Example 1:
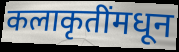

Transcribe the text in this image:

कलाकृतींमधून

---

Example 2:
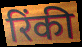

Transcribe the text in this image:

रिंकी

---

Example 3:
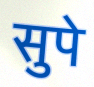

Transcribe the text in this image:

सुपे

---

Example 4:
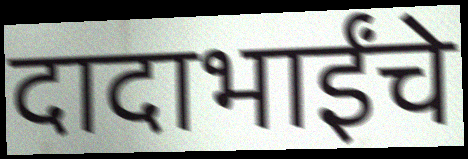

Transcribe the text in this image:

दादाभाईंचे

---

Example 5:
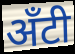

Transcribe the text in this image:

अँटी